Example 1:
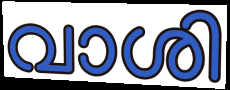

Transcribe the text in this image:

വാശി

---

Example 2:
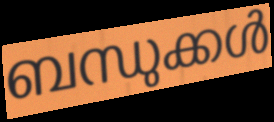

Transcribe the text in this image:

ബന്ധുക്കൾ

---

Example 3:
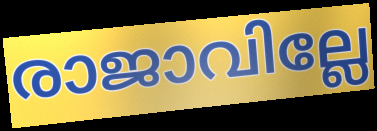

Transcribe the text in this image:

രാജാവില്ലേ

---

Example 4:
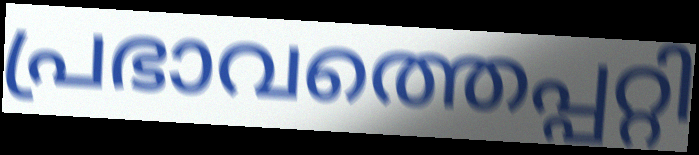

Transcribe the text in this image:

പ്രഭാവത്തെപ്പറ്റി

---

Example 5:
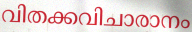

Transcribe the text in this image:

വിതക്കവിചാരാനം